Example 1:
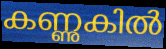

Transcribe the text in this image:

കണ്ണുകിൽ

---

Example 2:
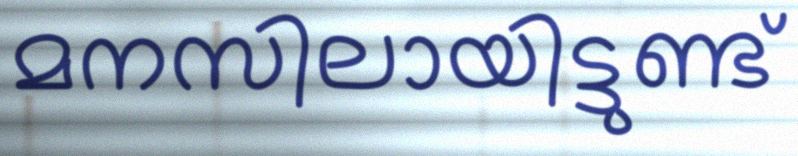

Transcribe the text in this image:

മനസിലായിട്ടുണ്ട്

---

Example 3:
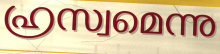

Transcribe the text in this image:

ഹ്രസ്വമെന്നു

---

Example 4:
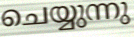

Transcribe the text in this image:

ചെയ്യുന്നു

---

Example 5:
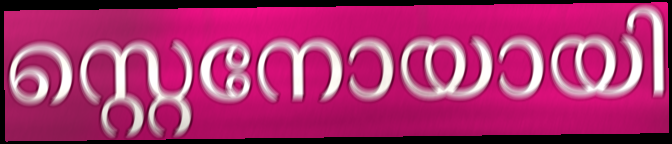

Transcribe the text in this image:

സ്റ്റെനോയായി